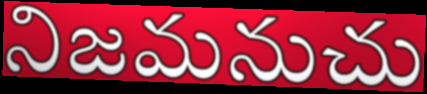
నిజమనుచు